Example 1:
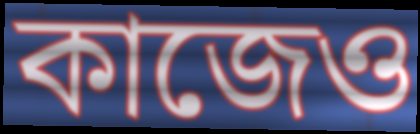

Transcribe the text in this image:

কাজেও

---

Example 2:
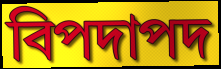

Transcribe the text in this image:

বিপদাপদ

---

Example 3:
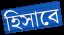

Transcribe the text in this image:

হিসাবে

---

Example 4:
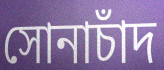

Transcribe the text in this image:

সোনাচাঁদ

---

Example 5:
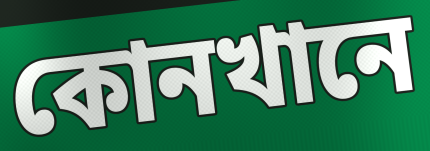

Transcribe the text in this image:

কোনখানে